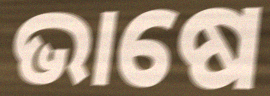
ଭାଷେ